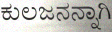
ಕುಲಜನನ್ನಾಗಿ